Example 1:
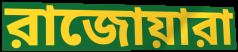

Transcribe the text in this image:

রাজোয়ারা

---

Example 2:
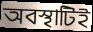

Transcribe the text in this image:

অবস্থাটিই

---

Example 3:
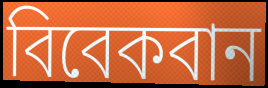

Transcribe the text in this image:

বিবেকবান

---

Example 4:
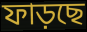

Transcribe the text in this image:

ফাড়ছে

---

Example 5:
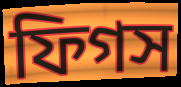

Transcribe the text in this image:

ফিগস